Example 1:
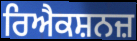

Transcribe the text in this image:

ਰਿਐਕਸ਼ਨਜ਼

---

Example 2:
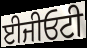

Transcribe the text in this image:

ਈਜੀਓਟੀ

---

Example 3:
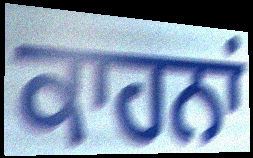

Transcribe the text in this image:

ਕਾਹਨਾਂ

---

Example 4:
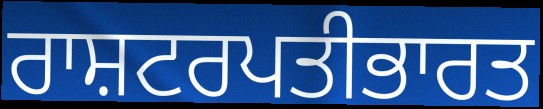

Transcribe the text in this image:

ਰਾਸ਼ਟਰਪਤੀਭਾਰਤ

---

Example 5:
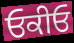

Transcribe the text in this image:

ਓਕੀਓ